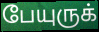
பேயுருக்